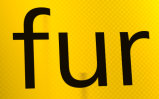
fur